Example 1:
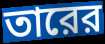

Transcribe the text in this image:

তারের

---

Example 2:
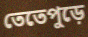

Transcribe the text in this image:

তেতেপুড়ে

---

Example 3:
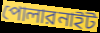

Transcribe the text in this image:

পোলারনাইট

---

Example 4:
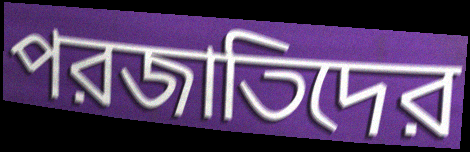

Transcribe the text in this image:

পরজাতিদের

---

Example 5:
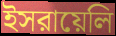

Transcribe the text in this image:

ইসরায়েলি